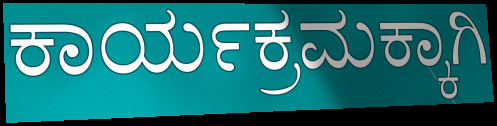
ಕಾರ್ಯಕ್ರಮಕ್ಕಾಗಿ